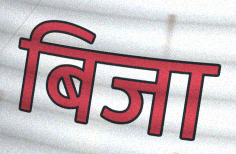
बिजा